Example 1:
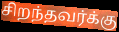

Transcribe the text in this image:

சிறந்தவர்க்கு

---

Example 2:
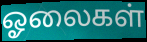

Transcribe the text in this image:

ஓலைகள்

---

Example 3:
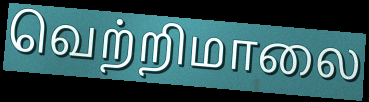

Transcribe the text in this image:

வெற்றிமாலை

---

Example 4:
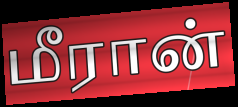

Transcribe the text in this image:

மீரான்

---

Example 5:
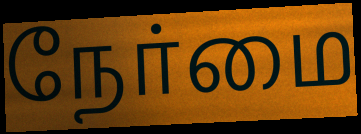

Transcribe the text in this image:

நேர்மை